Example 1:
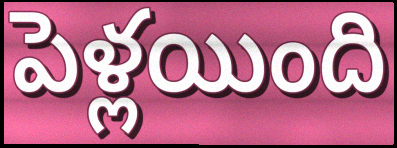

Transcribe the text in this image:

పెళ్లయింది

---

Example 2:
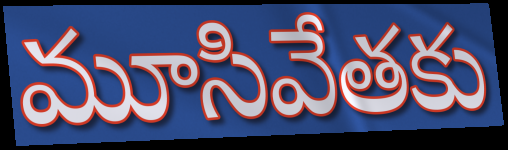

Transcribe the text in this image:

మూసివేతకు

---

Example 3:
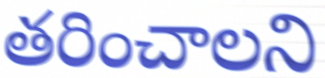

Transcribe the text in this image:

తరించాలని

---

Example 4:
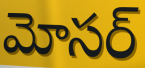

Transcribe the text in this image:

మోసర్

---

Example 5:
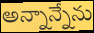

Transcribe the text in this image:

అన్నాన్నేను